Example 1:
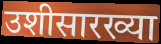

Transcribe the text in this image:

उशीसारख्या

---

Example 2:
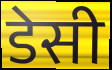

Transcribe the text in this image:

डेसी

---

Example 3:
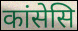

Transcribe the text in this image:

कांसेसि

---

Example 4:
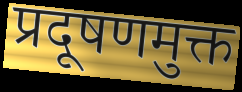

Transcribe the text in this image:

प्रदूषणमुक्त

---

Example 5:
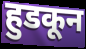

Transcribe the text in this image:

हुडकून